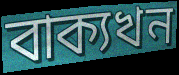
বাক্যখন